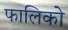
फालिको